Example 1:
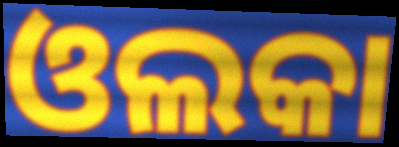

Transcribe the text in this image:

ଓଲକା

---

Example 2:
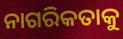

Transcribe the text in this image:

ନାଗରିକତାକୁ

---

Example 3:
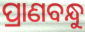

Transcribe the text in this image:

ପ୍ରାଣବନ୍ଧୁ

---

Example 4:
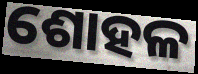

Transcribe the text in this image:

ଶୋହଳ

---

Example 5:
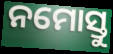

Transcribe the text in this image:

ନମୋସ୍ତୁ